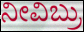
ನೀವಿಬ್ರು